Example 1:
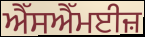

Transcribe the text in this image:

ਐੱਸਐੱਮਈਜ਼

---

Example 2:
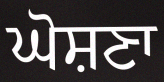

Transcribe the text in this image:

ਘੋਸ਼ਣਾ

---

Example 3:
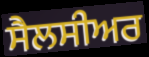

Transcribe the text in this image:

ਸੈਲਸੀਅਰ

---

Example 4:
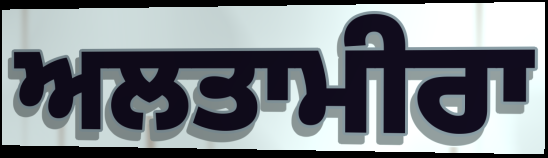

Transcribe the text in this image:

ਅਲਤਾਮੀਰਾ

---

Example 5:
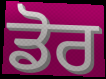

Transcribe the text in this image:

ਡੋਰ